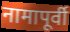
नामापूर्वी